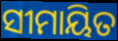
ସୀମାୟିତ